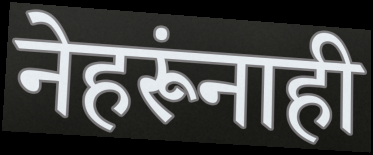
नेहरूंनाही